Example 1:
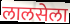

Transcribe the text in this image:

लालसेला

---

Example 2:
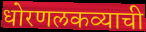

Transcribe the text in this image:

धोरणलकव्याची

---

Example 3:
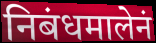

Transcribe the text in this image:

निबंधमालेनं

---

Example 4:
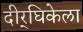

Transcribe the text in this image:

दीर्घिकेला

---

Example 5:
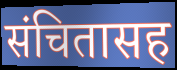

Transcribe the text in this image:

संचितासह